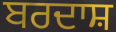
ਬਰਦਾਸ਼